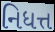
નિધત્ત